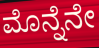
ಮೊನ್ನೆನೇ